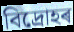
বিদ্ৰোহৰ